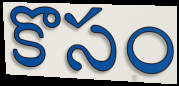
కొసం